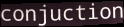
conjuction